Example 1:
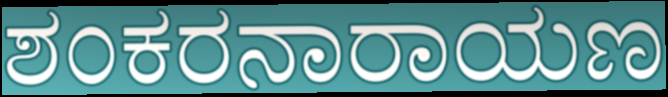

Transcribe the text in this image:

ಶಂಕರನಾರಾಯಣ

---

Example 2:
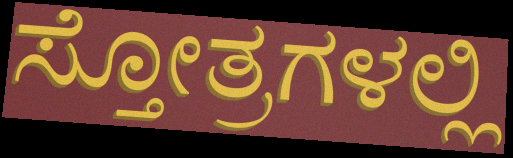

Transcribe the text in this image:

ಸ್ತೋತ್ರಗಳಲ್ಲಿ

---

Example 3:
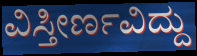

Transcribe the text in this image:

ವಿಸ್ತೀರ್ಣವಿದ್ದು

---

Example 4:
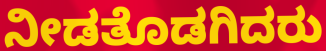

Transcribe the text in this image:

ನೀಡತೊಡಗಿದರು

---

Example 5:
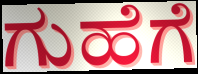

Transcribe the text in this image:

ಗುಹೆಗೆ